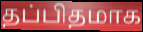
தப்பிதமாக